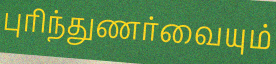
புரிந்துணர்வையும்